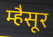
म्हैसूर